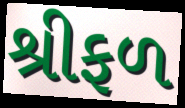
શ્રીફળ